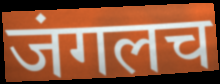
जंगलच